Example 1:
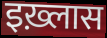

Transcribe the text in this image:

इख़्लास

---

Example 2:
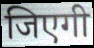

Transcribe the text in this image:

जिएगी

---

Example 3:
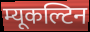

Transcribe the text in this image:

म्यूकल्टिन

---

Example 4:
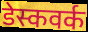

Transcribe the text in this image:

डेस्कवर्क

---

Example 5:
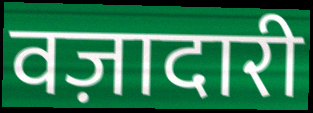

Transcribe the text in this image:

वज़ादारी